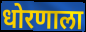
धोरणाला